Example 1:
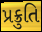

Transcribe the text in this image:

પ્રક્રુતિ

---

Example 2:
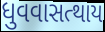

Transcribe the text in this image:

ધુવવાસત્થાય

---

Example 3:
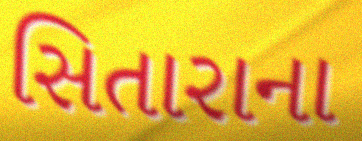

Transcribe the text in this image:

સિતારાના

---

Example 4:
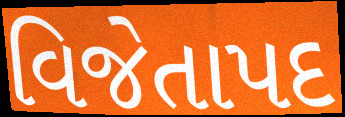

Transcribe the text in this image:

વિજેતાપદ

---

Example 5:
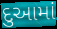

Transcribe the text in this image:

દુઆમાં